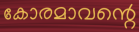
കോരമാവന്റെ